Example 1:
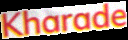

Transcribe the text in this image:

Kharade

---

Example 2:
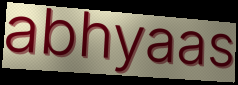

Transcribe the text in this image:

abhyaas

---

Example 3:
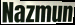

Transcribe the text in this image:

Nazmun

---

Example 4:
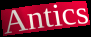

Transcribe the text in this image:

Antics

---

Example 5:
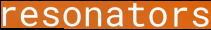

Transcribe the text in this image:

resonators